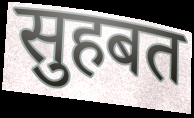
सुहबत